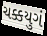
ચક્કયુગં